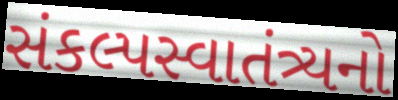
સંકલ્પસ્વાતંત્ર્યનો